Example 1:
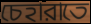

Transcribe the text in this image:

চেহারাতে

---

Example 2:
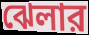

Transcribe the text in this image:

ঝেলার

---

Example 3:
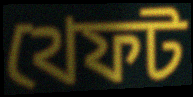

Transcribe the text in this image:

থেফট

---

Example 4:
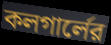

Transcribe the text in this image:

কলগার্লের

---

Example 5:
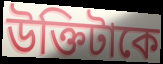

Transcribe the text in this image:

উক্তিটাকে